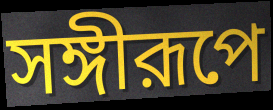
সঙ্গীরূপে